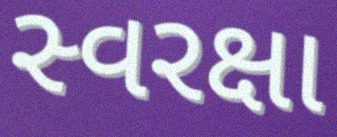
સ્વરક્ષા